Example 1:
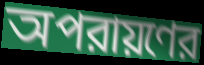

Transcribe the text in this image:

অপরায়ণের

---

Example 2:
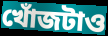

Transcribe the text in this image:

খোঁজটাও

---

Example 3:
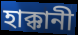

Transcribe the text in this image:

হাক্কানী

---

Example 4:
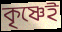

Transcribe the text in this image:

কৃষ্ণেই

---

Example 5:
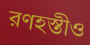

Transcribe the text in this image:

রণহস্তীও